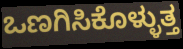
ಒಣಗಿಸಿಕೊಳ್ಳುತ್ತ